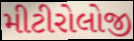
મીટીરોલોજી